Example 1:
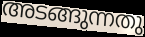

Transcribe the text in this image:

അടങ്ങുന്നതു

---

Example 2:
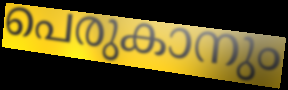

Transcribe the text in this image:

പെരുകാനും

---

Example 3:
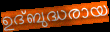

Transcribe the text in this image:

ഉദ്ബുദ്ധരായ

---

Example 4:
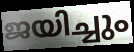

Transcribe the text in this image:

ജയിച്ചും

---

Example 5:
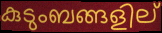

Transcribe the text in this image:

കുടുംബങ്ങളില്